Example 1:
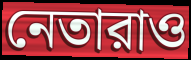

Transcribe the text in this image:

নেতারাও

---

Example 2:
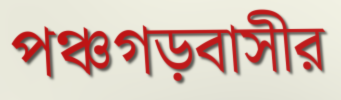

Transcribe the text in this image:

পঞ্চগড়বাসীর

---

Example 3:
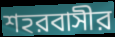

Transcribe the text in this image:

শহরবাসীর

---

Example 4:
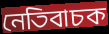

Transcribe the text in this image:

নেতিবাচক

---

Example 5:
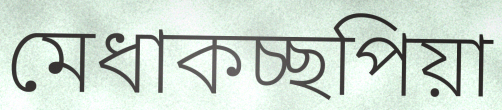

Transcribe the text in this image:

মেধাকচ্ছপিয়া